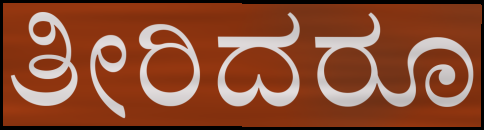
ತೀರಿದರೂ